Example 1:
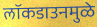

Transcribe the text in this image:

लॉकडाउनमुळे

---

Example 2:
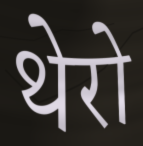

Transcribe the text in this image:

थेरो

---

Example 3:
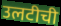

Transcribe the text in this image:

उलटीची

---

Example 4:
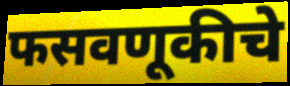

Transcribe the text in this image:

फसवणूकीचे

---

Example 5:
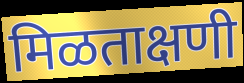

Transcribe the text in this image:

मिळताक्षणी